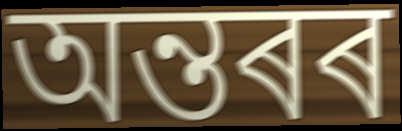
অন্তৰৰ